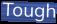
Tough